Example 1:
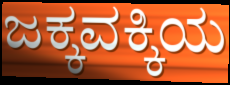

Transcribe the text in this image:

ಜಕ್ಕವಕ್ಕಿಯ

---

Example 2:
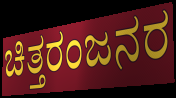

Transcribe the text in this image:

ಚಿತ್ತರಂಜನರ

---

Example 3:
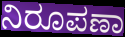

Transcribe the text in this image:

ನಿರೂಪಣಾ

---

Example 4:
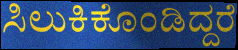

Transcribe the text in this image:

ಸಿಲುಕಿಕೊಂಡಿದ್ದರೆ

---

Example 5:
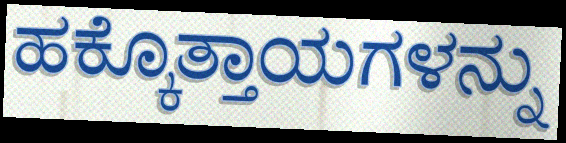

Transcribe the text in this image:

ಹಕ್ಕೊತ್ತಾಯಗಳನ್ನು